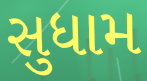
સુધામ